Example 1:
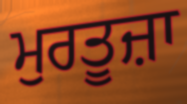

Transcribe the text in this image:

ਮੁਰਤੂਜ਼ਾ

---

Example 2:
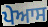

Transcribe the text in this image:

ਪੇਆਸ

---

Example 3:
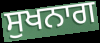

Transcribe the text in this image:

ਸੁਖਨਾਗ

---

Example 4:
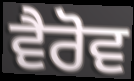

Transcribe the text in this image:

ਵੈਰੋਵ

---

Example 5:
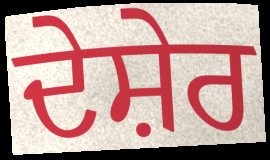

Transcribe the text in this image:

ਦੇਸ਼ੇਰ